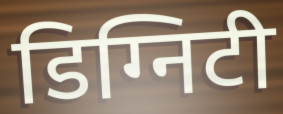
डिग्निटी